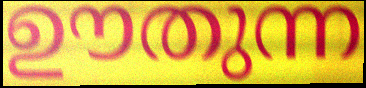
ഊതുന്ന